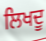
ਲਿਖਦੂ